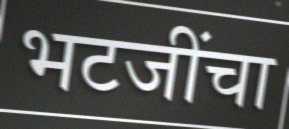
भटजींचा